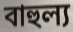
বাহুল্য